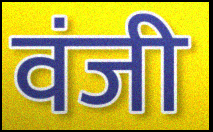
वंजी